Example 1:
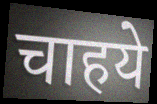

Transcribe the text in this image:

चाहये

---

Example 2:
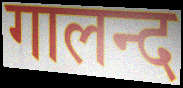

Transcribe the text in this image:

गालन्द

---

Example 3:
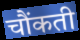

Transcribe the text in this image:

चौंकती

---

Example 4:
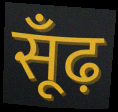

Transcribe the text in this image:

सूँढ़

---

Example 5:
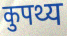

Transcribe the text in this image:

कुपथ्य